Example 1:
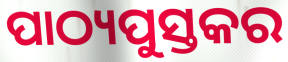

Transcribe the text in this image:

ପାଠ୍ୟପୁସ୍ତକର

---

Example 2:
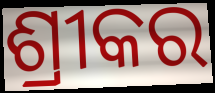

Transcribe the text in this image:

ଶ୍ରୀକର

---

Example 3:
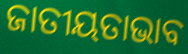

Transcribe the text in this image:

ଜାତୀୟତାଭାବ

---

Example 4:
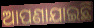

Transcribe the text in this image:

ଆପଣାଯାଇଛି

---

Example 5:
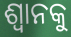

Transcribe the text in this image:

ଶ୍ଵାନକୁ